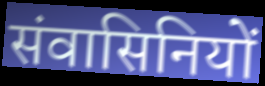
संवासिनियों